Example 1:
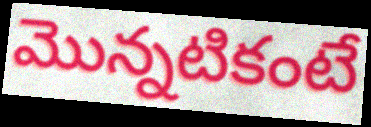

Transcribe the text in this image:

మొన్నటికంటే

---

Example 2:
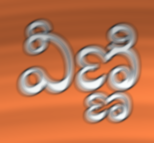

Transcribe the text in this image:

వీణ్ణి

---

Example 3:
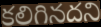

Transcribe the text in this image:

కలిగినదని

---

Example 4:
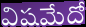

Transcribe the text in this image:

విషమేదో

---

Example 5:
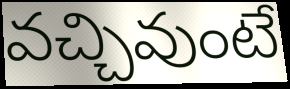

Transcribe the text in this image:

వచ్చివుంటే